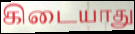
கிடையாது